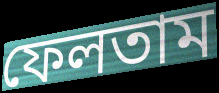
ফেলতাম